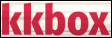
kkbox